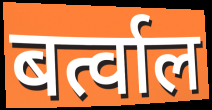
बर्त्वाल